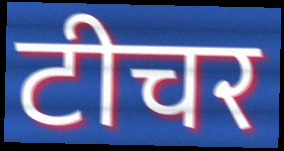
टीचर